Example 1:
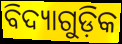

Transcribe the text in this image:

ବିଦ୍ୟାଗୁଡ଼ିକ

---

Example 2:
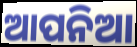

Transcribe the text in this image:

ଆପନିଆ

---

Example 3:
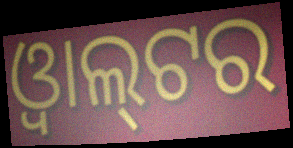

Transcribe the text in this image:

ଓ୍ୱାଲ୍‍ଟର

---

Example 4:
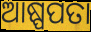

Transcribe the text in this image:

ଆଷ୍ପପତା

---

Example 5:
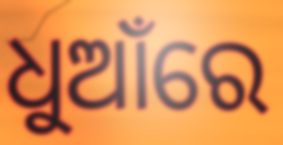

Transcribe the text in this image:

ଧୁଆଁରେ